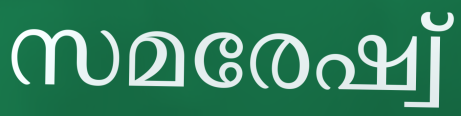
സമരേഷ്വ്